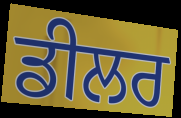
ਡੀਲਰ